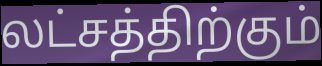
லட்சத்திற்கும்